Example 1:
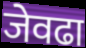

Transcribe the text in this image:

जेवढा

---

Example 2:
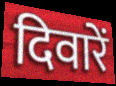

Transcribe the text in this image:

दिवारें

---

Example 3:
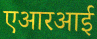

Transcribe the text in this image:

एआरआई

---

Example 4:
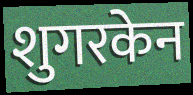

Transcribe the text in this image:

शुगरकेन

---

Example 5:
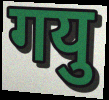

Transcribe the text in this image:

गयु